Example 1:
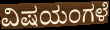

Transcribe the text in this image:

ವಿಷಯಂಗಳೆ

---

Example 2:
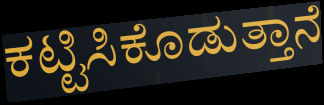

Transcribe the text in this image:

ಕಟ್ಟಿಸಿಕೊಡುತ್ತಾನೆ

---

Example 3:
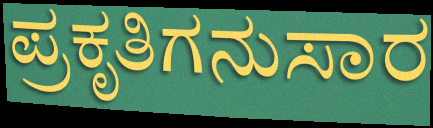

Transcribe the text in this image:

ಪ್ರಕೃತಿಗನುಸಾರ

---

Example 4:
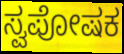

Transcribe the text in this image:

ಸ್ವಪೋಷಕ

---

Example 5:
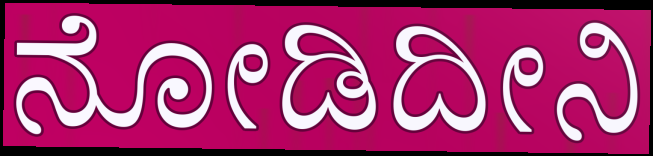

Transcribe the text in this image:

ನೋಡಿದೀನಿ